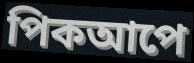
পিকআপে